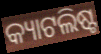
କ୍ୟାଟଲିଷ୍ଟ